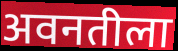
अवनतीला